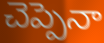
చెప్పెనా